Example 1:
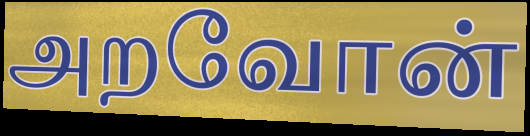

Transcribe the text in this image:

அறவோன்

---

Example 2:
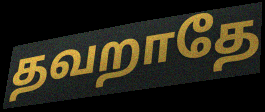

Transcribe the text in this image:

தவறாதே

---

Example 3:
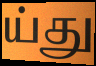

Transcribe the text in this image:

ய்து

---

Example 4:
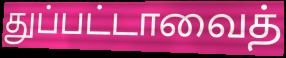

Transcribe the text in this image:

துப்பட்டாவைத்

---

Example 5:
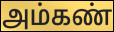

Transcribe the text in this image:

அம்கண்